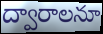
ద్వారాలనూ